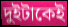
দুইটাকেই